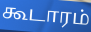
கூடாரம்